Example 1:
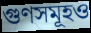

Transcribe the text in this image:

গুণসমূহও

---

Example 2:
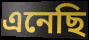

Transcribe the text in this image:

এনেছি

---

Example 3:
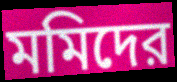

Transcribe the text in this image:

মমিদের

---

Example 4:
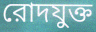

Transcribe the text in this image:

রোদযুক্ত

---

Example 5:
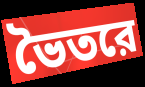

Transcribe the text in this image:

ভৈতরে